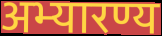
अभ्यारण्य